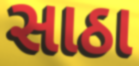
સાઠા